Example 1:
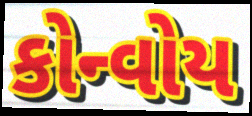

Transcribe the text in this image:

કોન્વોય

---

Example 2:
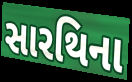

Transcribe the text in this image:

સારથિના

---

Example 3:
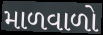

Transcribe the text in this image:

માળવાળો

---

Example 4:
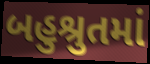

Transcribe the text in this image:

બહુશ્રુતમાં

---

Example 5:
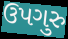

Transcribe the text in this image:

ઉપગુરુ